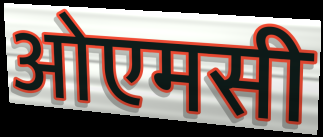
ओएमसी